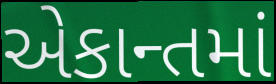
એકાન્તમાં